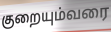
குறையும்வரை